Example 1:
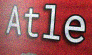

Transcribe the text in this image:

Atle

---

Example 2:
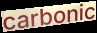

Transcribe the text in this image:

carbonic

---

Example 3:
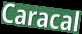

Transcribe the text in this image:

Caracal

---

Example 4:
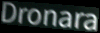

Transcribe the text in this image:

Dronara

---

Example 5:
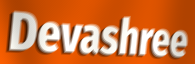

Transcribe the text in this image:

Devashree